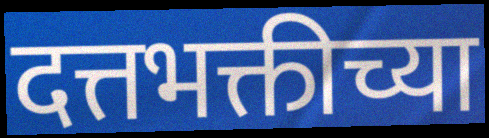
दत्तभक्तीच्या